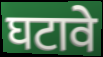
घटावे